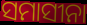
ସମାସୀନା